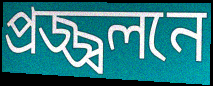
প্রজ্জ্বলনে